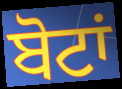
ਬੋਟਾਂ